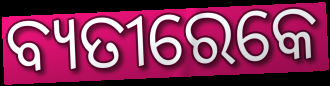
ବ୍ୟତୀରେକେ